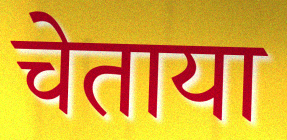
चेताया